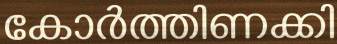
കോർത്തിണക്കി